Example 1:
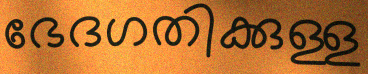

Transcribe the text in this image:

ഭേദഗതിക്കുള്ള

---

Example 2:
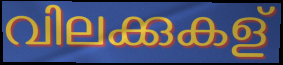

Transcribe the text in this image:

വിലക്കുകള്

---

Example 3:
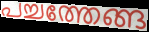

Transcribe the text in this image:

പച്ചത്തേങ്ങ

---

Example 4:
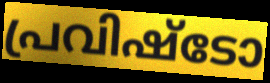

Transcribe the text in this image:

പ്രവിഷ്ടോ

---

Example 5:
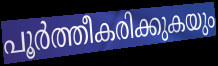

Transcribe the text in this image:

പൂർത്തീകരിക്കുകയും